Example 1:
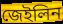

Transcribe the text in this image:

জেইলিন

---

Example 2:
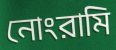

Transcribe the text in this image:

নোংরামি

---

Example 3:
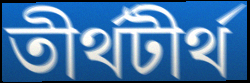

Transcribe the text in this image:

তীর্থটীর্থ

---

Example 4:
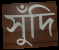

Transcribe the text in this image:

সুঁদি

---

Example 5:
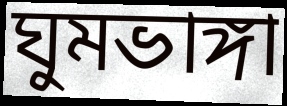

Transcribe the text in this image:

ঘুমভাঙ্গা